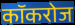
कॉकरोज